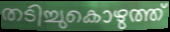
തടിച്ചുകൊഴുത്ത്